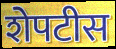
शेपटीस